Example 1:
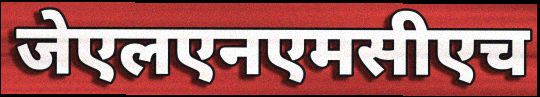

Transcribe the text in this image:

जेएलएनएमसीएच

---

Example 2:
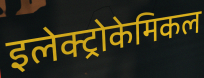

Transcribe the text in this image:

इलेक्ट्रोकेमिकल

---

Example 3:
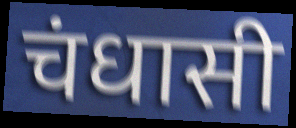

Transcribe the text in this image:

चंधासी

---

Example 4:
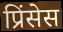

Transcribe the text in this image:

प्रिंसेस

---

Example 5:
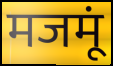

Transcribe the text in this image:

मजमूं